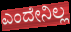
ಎಂದೇನಿಲ್ಲ